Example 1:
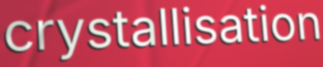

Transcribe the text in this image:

crystallisation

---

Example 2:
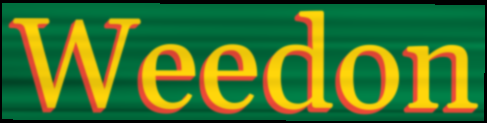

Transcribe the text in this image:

Weedon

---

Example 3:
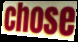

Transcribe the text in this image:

chose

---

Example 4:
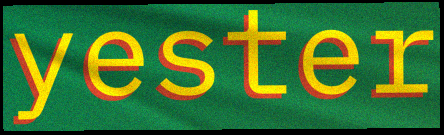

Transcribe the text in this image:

yester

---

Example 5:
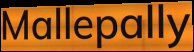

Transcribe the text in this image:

Mallepally